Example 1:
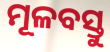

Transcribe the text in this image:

ମୂଳବସ୍ତୁ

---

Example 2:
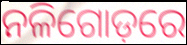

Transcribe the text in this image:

ନଳିଗୋଡ଼ରେ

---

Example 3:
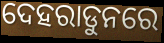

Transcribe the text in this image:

ଦେହରାଡୁନରେ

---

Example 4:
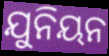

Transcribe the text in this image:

ଯୁନିୟନ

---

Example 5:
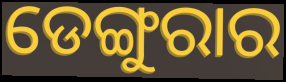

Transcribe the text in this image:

ଡେଙ୍ଗୁରାର